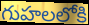
గుహలలోకి